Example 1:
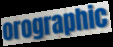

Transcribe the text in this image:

orographic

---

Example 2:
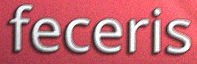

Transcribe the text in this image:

feceris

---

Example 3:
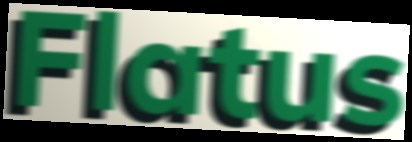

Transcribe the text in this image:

Flatus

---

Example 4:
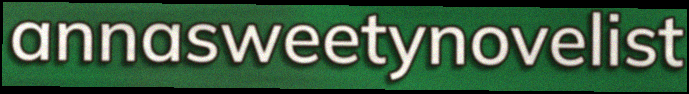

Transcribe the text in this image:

annasweetynovelist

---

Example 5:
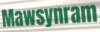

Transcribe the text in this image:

Mawsynram